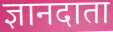
ज्ञानदाता